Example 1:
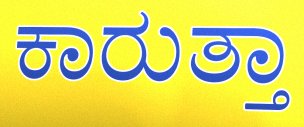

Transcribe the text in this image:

ಕಾರುತ್ತಾ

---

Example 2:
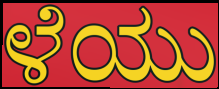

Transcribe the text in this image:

ಳೆಯು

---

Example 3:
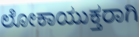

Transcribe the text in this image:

ಲೋಕಾಯುಕ್ತರಾಗಿ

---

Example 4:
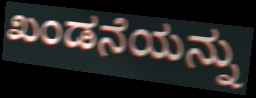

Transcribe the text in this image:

ಖಂಡನೆಯನ್ನು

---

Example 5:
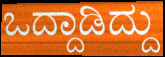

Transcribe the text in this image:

ಒದ್ದಾಡಿದ್ದು